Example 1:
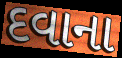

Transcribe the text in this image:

દવાના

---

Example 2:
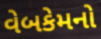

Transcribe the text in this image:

વેબકેમનો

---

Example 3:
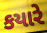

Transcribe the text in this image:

કયારે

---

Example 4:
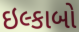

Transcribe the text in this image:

ઇલ્કાબો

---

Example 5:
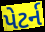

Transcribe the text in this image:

પેટર્ન